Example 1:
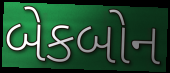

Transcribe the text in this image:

બેકબોન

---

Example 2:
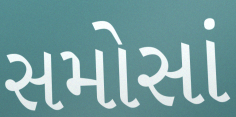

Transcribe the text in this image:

સમોસાં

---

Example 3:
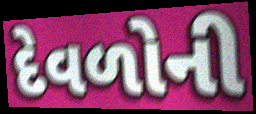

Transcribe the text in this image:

દેવળોની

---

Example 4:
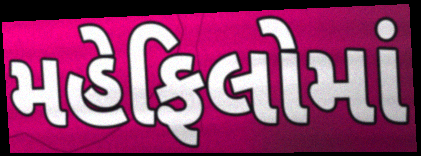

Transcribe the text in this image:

મહેફિલોમાં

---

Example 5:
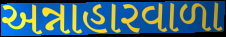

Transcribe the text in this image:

અન્નાહારવાળા